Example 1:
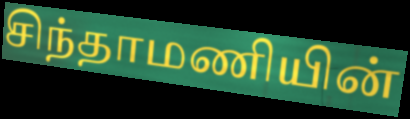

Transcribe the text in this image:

சிந்தாமணியின்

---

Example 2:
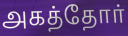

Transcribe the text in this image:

அகத்தோர்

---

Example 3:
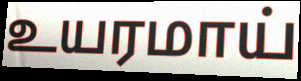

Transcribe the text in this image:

உயரமாய்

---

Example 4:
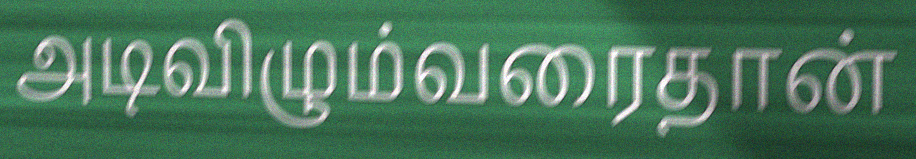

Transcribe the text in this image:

அடிவிழும்வரைதான்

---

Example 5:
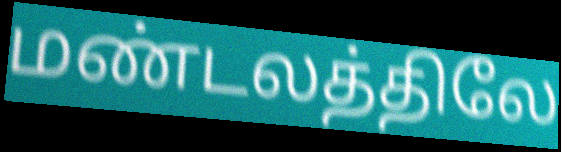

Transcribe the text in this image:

மண்டலத்திலே